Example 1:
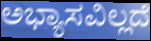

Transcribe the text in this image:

ಅಭ್ಯಾಸವಿಲ್ಲದೆ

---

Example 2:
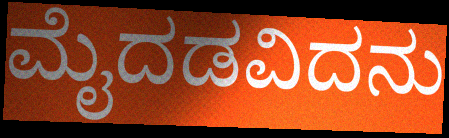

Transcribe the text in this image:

ಮೈದಡವಿದನು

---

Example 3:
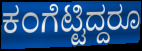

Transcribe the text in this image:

ಕಂಗೆಟ್ಟಿದ್ದರೂ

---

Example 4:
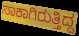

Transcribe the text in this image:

ಸಾಕಾಗಿರುತ್ತಿದ್ದ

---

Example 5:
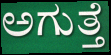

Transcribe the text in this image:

ಅಗುತ್ತೆ